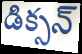
డిక్సన్